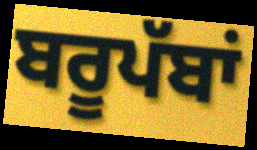
ਬਰੂਪੱਬਾਂ